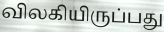
விலகியிருப்பது